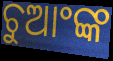
ଚୁଆଂଙ୍କ